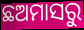
ଛଅମାସରୁ